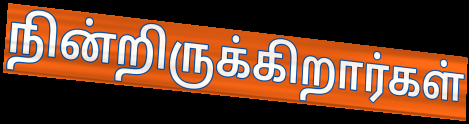
நின்றிருக்கிறார்கள்